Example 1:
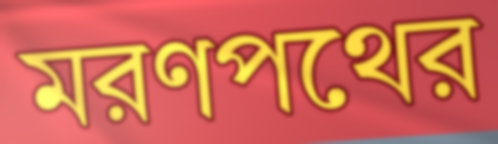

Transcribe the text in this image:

মরণপথের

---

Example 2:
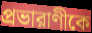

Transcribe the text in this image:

প্রভারাণীকে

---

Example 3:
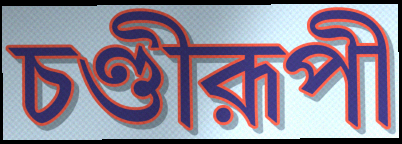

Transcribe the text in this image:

চণ্ডীরূপী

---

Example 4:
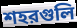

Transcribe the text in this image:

শহরগুলি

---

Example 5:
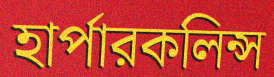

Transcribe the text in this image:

হার্পারকলিন্স